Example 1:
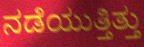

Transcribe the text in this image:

ನಡೆಯುತ್ತಿತ್ತು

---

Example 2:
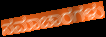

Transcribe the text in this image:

ಸಮಾಚಾರಗಳು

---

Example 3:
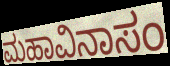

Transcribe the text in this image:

ಮಹಾವಿನಾಸಂ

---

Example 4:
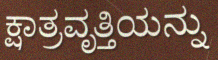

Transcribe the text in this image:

ಕ್ಷಾತ್ರವೃತ್ತಿಯನ್ನು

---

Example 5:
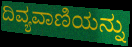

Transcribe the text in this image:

ದಿವ್ಯವಾಣಿಯನ್ನು